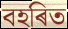
বহৰিত